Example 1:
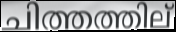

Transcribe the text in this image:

ചിത്തത്തില്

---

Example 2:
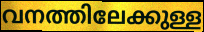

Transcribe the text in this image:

വനത്തിലേക്കുള്ള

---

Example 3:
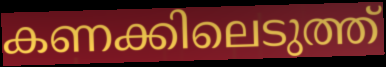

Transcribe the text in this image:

കണക്കിലെടുത്ത്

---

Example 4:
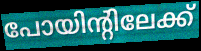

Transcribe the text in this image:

പോയിന്റിലേക്ക്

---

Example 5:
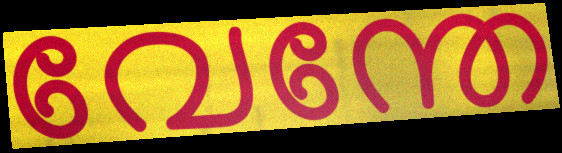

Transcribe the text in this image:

വേന്തേ